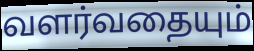
வளர்வதையும்